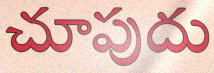
చూపుదు